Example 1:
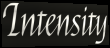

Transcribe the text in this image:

Intensity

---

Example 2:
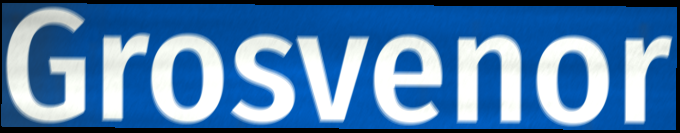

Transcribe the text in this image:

Grosvenor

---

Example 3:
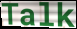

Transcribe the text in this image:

Talk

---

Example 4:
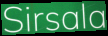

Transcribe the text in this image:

Sirsala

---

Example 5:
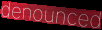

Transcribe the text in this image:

denounced